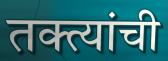
तक्त्यांची